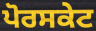
ਪੋਰਸਕੇਟ